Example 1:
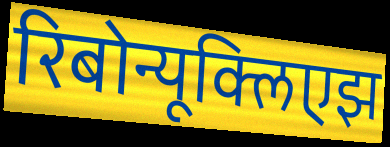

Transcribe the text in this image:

रिबोन्यूक्लिएझ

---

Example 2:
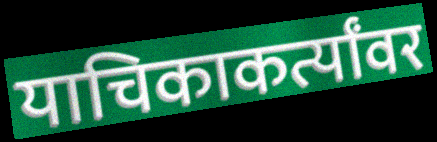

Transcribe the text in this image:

याचिकाकर्त्यांवर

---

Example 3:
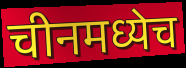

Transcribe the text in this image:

चीनमध्येच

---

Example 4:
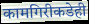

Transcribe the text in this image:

कामगिरीकडेही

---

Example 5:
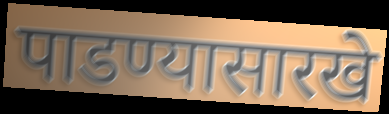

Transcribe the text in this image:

पाडण्यासारखे